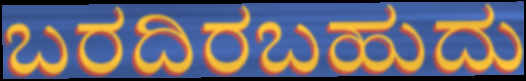
ಬರದಿರಬಹುದು